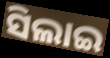
ସିଲାଇ